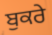
ਬੁਕਰੇ